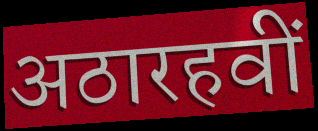
अठारहवीं